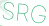
SRG